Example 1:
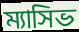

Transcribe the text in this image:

ম্যাসিভ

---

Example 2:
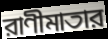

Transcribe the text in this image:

রাণীমাতার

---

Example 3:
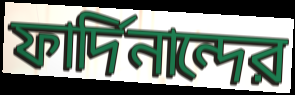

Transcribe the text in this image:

ফার্দিনান্দের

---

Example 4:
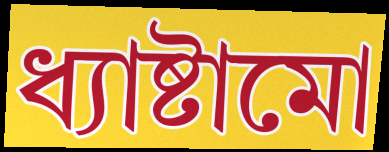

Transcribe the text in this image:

ধ্যাষ্টামো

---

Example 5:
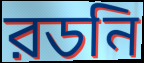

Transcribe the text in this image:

রডনি